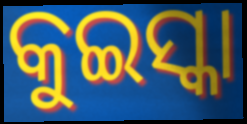
କୁଇସ୍କା